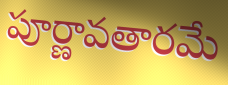
పూర్ణావతారమే